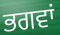
ਭਗਵਾਂ